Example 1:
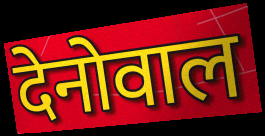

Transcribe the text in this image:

देनोवाल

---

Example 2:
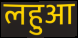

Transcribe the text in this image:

लहुआ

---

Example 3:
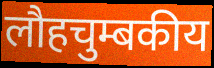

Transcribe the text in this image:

लौहचुम्बकीय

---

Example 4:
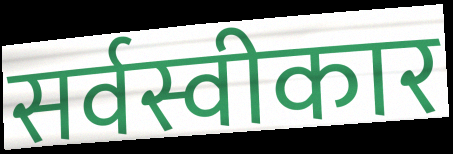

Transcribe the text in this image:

सर्वस्वीकार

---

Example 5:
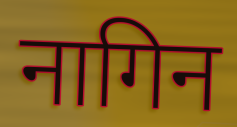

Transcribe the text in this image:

नागिन